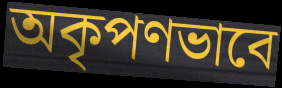
অকৃপণভাবে